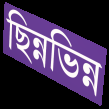
ছিন্নভিন্ন